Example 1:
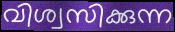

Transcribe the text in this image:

വിശ്വസിക്കുന്ന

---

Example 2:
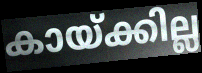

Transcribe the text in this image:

കായ്ക്കില്ല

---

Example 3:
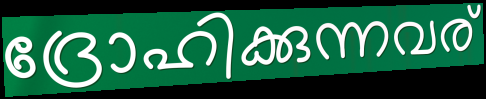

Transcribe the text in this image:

ദ്രോഹിക്കുന്നവര്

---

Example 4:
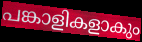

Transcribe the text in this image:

പങ്കാളികളാകും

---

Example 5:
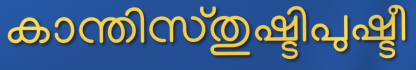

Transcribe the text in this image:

കാന്തിസ്തുഷ്ടിപുഷ്ടീ